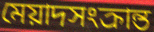
মেয়াদসংক্রান্ত